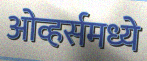
ओव्हर्समध्ये